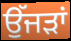
ਉੱਜੜਾਂ